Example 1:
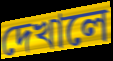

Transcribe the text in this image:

দেখালে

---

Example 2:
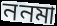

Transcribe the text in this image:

ননমা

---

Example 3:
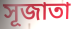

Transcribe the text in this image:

সূজাতা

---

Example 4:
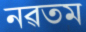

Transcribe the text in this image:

নৱতম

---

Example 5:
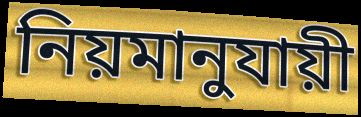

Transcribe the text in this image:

নিয়মানুযায়ী